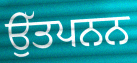
ਉੱਤਪਨਨ